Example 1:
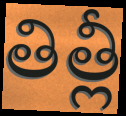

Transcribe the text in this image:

తిత్లీ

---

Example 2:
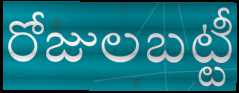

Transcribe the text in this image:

రోజులబట్టీ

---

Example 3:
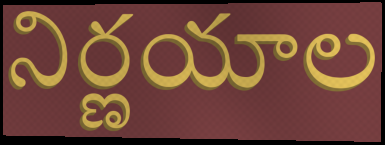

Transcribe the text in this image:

నిర్ణయాల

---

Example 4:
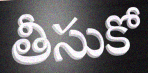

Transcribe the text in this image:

తీసుకో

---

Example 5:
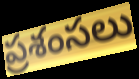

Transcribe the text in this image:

ప్రశంసలు